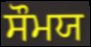
ਸੌਮਯ